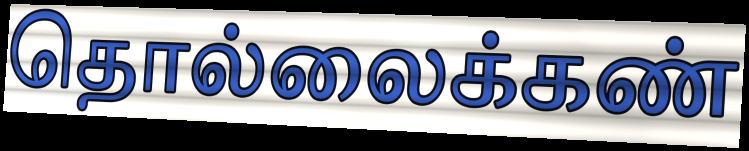
தொல்லைக்கண்